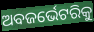
ଅବଜର୍ଭେଟରିକୁ